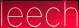
leech